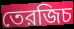
তেরজিচ